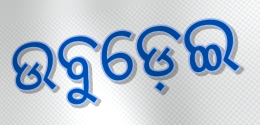
ଉବୁଡ଼େଇ